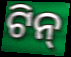
ଟିନ୍